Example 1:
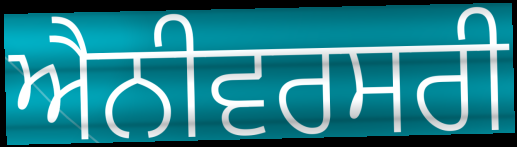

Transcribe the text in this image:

ਐਨੀਵਰਸਰੀ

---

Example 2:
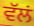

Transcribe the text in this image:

ਵੱਲਂ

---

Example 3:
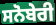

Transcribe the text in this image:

ਸਨੋਬੇਰੀ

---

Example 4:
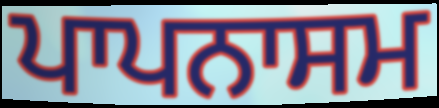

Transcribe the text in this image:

ਪਾਪਨਾਸਮ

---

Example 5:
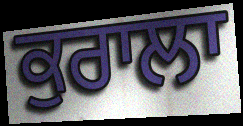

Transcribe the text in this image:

ਕੁਰਾਲਾ